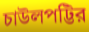
চাউলপট্টির